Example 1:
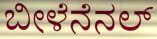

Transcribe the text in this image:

ಬೀಳೆನೆನಲ್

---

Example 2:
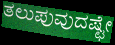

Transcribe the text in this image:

ತಲುಪುವುದಷ್ಟೇ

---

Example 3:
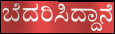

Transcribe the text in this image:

ಬೆದರಿಸಿದ್ದಾನೆ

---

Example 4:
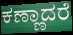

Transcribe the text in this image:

ಕಣ್ಣಾದರೆ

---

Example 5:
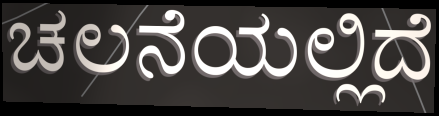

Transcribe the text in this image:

ಚಲನೆಯಲ್ಲಿದೆ